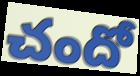
చందో